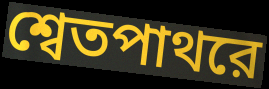
শ্বেতপাথরে